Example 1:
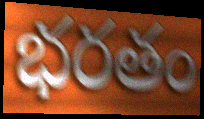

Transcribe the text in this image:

భరతం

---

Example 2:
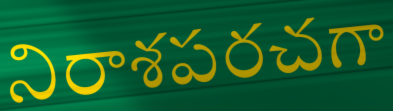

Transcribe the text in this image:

నిరాశపరచగా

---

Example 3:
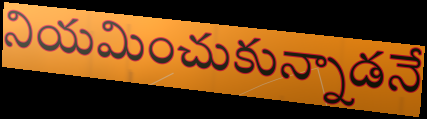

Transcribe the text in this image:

నియమించుకున్నాడనే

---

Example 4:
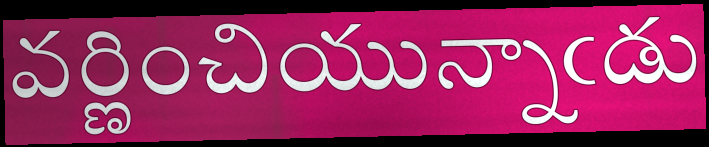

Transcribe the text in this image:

వర్ణించియున్నాఁడు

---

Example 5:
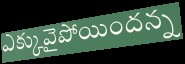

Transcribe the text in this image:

ఎక్కువైపోయిందన్న